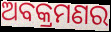
ଅବକ୍ରମଣର